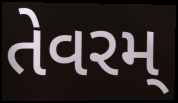
તેવરમ્